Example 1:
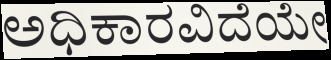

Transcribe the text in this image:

ಅಧಿಕಾರವಿದೆಯೇ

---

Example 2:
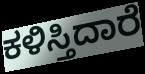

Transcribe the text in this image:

ಕಳಿಸ್ತಿದಾರೆ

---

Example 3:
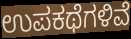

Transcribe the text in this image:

ಉಪಕಥೆಗಳಿವೆ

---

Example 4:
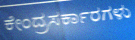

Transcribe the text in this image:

ಕೇಂದ್ರಸರ್ಕಾರಗಳು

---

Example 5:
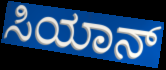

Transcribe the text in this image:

ಸಿಯಾನ್